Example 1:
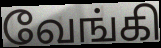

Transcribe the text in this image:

வேங்கி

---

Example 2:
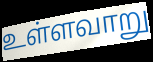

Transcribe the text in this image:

உள்ளவாறு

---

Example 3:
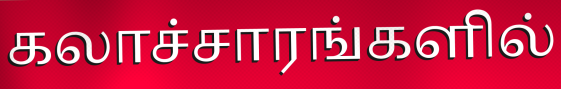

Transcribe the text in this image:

கலாச்சாரங்களில்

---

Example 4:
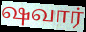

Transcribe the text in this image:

ஷவார்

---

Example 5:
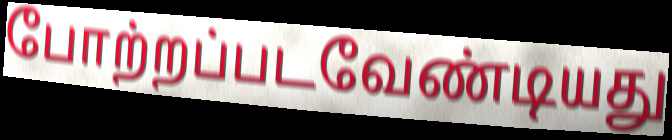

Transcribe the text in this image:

போற்றப்படவேண்டியது